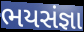
ભયસંજ્ઞા